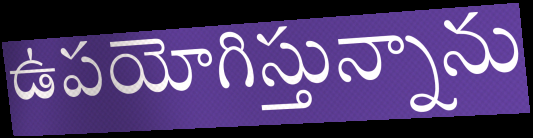
ఉపయోగిస్తున్నాను